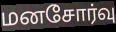
மனசோர்வு